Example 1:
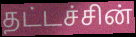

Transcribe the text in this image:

தட்டச்சின்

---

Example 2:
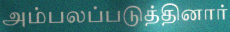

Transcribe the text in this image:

அம்பலப்படுத்தினார்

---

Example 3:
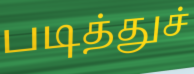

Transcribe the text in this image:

படித்துச்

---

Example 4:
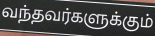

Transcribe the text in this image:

வந்தவர்களுக்கும்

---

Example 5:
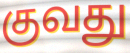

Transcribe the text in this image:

குவது